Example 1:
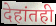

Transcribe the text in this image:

देहांतही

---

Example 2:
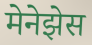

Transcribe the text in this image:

मेनेझेस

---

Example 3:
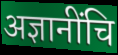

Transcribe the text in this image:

अज्ञानींचि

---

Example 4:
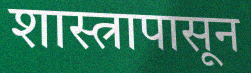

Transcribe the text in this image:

शास्त्रापासून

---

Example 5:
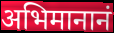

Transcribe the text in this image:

अभिमानानं